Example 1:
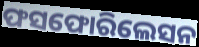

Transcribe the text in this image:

ଫସଫୋରିଲେସନ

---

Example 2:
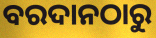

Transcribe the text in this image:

ବରଦାନଠାରୁ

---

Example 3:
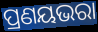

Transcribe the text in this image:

ପ୍ରଣୟଭରା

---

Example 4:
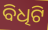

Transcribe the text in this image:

ବିଧିଟି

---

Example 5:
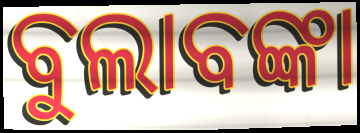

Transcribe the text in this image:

ବୁଲାବଙ୍କା